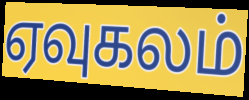
ஏவுகலம்